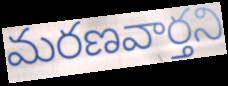
మరణవార్తని